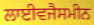
ਲਾਈਵਜੈਸਮੀਨ